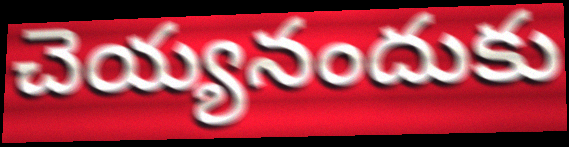
చెయ్యనందుకు